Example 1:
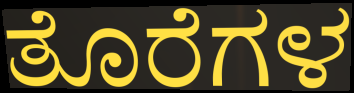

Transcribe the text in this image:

ತೊರೆಗಳ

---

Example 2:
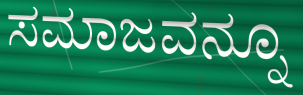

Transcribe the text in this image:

ಸಮಾಜವನ್ನೂ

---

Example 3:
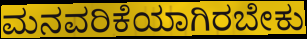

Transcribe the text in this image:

ಮನವರಿಕೆಯಾಗಿರಬೇಕು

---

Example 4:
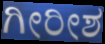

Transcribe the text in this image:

ಗೀರೀಶ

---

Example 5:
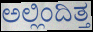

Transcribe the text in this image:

ಅಲ್ಲಿಂದಿತ್ತ